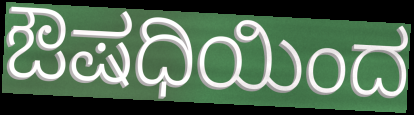
ಔಷಧಿಯಿಂದ